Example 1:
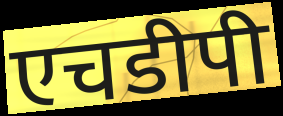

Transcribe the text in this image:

एचडीपी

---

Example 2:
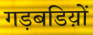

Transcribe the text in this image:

गड़बडिय़ों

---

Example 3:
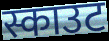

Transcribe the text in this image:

स्काउट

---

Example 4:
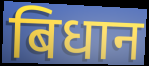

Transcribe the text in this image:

बिधान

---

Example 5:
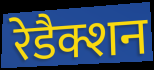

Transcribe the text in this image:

रेडैक्शन